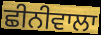
ਛੀਨੀਵਾਲਾ